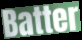
Batter